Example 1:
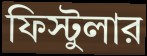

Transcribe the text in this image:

ফিস্টুলার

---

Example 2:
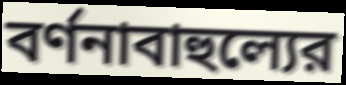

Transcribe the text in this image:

বর্ণনাবাহুল্যের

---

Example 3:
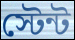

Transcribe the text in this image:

স্টেন্ট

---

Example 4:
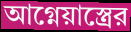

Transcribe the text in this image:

আগ্নেয়াস্ত্রের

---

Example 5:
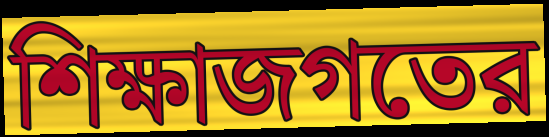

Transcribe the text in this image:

শিক্ষাজগতের